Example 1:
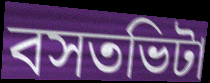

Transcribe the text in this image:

বসতভিটা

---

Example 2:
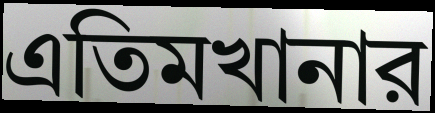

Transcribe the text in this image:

এতিমখানার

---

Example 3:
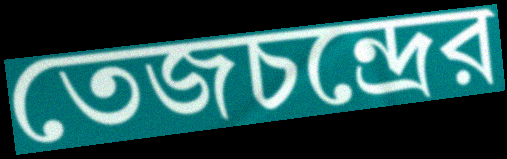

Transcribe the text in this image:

তেজচন্দ্রের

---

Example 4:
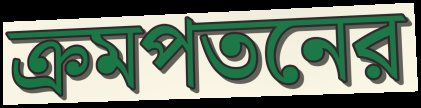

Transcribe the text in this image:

ক্রমপতনের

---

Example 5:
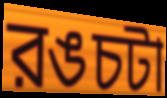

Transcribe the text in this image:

রঙচটা